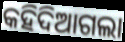
କହିଦିଆଗଲା